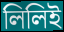
লিলিই